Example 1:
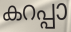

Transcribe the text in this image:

കറപ്പാ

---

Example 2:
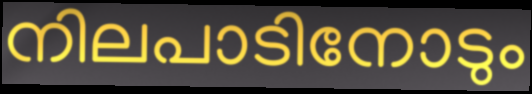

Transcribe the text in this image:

നിലപാടിനോടും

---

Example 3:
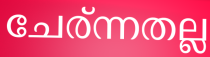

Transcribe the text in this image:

ചേര്ന്നതല്ല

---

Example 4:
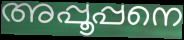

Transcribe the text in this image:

അപ്പൂപ്പനെ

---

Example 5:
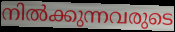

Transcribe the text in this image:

നിൽക്കുന്നവരുടെ